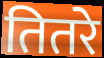
तितरे